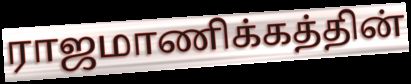
ராஜமாணிக்கத்தின்